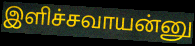
இளிச்சவாயன்னு